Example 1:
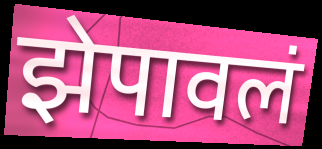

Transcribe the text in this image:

झेपावलं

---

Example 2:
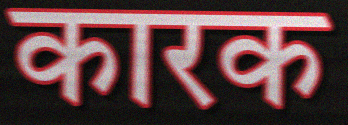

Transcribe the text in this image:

कारक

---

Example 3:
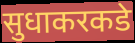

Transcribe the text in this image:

सुधाकरकडे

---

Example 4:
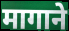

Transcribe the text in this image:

मागाने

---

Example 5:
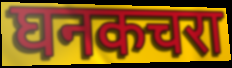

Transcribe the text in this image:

घनकचरा